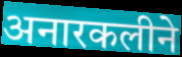
अनारकलीने